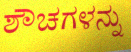
ಶೌಚಗಳನ್ನು